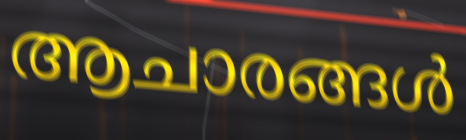
ആചാരങ്ങൾ